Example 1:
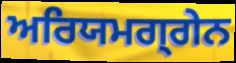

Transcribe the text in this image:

ਅਰਿਯਮਗ੍ਗੇਨ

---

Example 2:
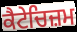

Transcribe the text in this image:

ਕੈਟੇਚਿਜ਼ਮ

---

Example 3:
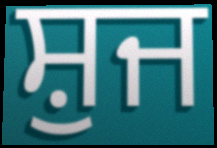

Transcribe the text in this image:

ਸ਼ੁਜ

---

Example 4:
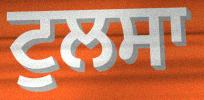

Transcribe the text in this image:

ਟੁਲਸਾ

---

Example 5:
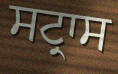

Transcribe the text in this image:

ਸਟ੍ਰਾਸ